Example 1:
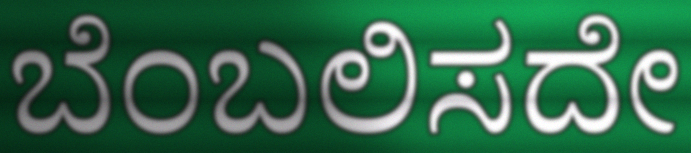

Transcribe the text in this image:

ಬೆಂಬಲಿಸದೇ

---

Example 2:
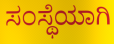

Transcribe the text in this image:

ಸಂಸ್ಥೆಯಾಗಿ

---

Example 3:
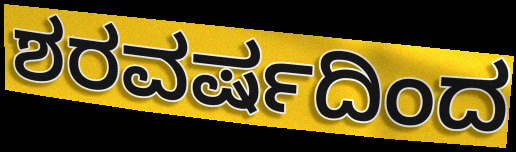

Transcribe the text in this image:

ಶರವರ್ಷದಿಂದ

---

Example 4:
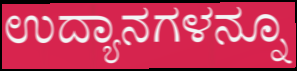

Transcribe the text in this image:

ಉದ್ಯಾನಗಳನ್ನೂ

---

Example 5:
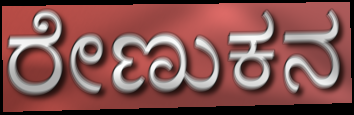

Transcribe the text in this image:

ರೇಣುಕನ